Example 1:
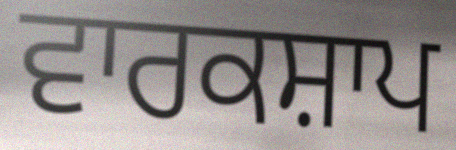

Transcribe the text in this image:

ਵਾਰਕਸ਼ਾਪ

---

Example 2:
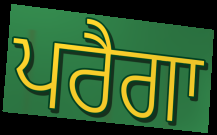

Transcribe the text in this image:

ਪਰੈਗਾ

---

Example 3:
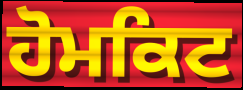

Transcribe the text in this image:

ਹੋਮਕਿਟ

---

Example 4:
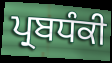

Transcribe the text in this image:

ਪ੍ਰਬਧੰਕੀ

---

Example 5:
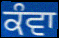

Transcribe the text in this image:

ਕੰਵਾ